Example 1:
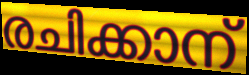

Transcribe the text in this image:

രചിക്കാന്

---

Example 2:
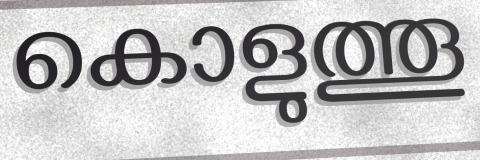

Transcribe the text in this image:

കൊളുത്തൂ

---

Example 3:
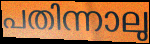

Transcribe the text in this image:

പതിന്നാലു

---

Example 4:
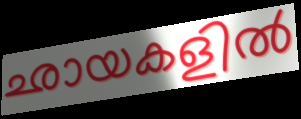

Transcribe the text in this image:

ഛായകളിൽ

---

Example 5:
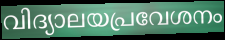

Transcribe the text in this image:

വിദ്യാലയപ്രവേശനം